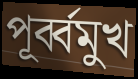
পূর্ব্বমুখ